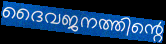
ദൈവജനത്തിന്റെ